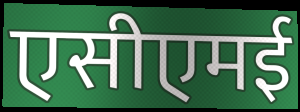
एसीएमई